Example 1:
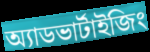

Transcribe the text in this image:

অ্যাডভার্টাইজিং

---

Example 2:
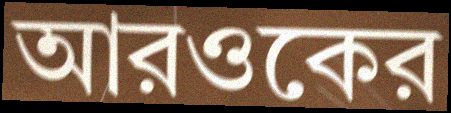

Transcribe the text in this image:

আরওকের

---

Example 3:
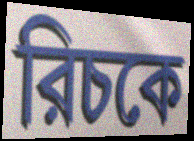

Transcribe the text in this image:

রিচকে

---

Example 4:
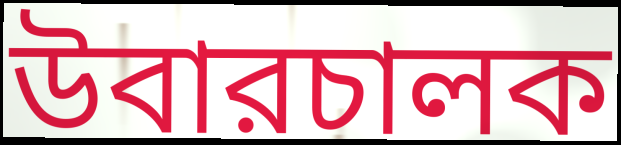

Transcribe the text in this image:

উবারচালক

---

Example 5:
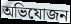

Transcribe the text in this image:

অভিযোজন